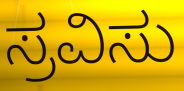
ಸ್ರವಿಸು